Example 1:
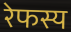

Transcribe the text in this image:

रेफस्य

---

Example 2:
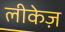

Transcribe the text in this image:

लीकेज़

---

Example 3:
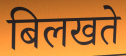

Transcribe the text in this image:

बिलखते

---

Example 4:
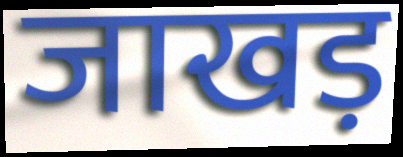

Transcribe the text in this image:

जाखड़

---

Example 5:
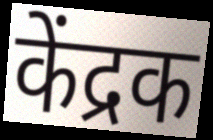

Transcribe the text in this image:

केंद्रक